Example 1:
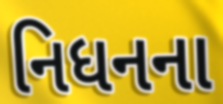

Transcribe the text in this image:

નિધનના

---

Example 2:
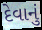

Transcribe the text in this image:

દેવાનું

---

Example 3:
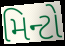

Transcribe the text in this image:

મિન્ટો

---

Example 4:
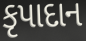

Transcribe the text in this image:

કૃપાદાન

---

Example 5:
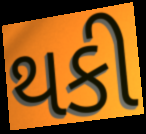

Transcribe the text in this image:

થકી